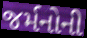
જર્મનોની